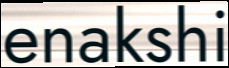
enakshi